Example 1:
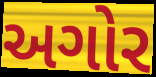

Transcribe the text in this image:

અગોર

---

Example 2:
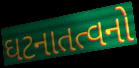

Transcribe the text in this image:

ઘટનાતત્વનો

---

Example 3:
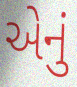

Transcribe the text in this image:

એેનું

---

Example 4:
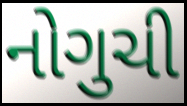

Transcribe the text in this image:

નોગુચી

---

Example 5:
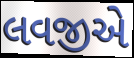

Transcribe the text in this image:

લવજીએ